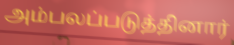
அம்பலப்படுத்தினார்